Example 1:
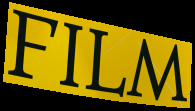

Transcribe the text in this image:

FILM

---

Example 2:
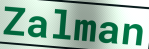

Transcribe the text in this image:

Zalman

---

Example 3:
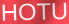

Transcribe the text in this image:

HOTU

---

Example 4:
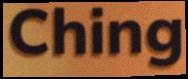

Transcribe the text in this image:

Ching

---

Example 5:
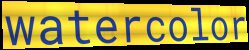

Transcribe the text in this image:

watercolor